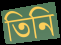
তিনি